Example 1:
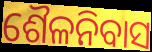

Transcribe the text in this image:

ଶୈଳନିବାସ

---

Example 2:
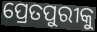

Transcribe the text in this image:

ପ୍ରେତପୁରୀକୁ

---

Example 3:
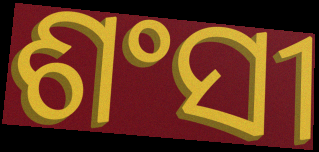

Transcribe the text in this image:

ଶଂସୀ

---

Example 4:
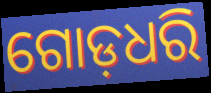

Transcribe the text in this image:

ଗୋଡ଼ଧରି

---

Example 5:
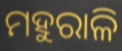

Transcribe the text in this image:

ମହୁରାଳି